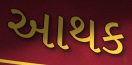
આથક